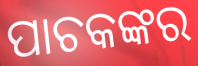
ପାଚକଙ୍କର